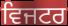
ਵਿਜਟਰ